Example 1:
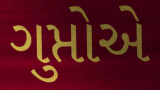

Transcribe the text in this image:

ગુપ્તોએ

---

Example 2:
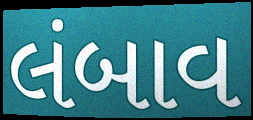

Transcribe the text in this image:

લંબાવ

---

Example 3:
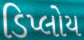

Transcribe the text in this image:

ડિપ્લોય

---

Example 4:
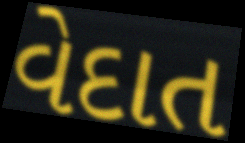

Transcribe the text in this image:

વેદાત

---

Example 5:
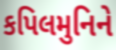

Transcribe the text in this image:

કપિલમુનિને